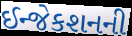
ઈન્જેકશનની